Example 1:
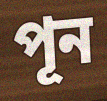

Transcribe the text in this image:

পূন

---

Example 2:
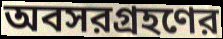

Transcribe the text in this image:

অবসরগ্রহণের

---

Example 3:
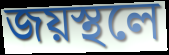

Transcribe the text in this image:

জয়স্থলে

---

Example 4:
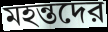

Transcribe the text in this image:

মহন্তদের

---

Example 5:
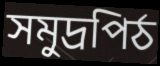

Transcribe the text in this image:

সমুদ্রপিঠ